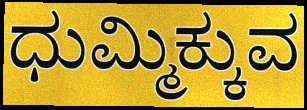
ಧುಮ್ಮಿಕ್ಕುವ